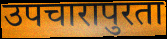
उपचारापुरता